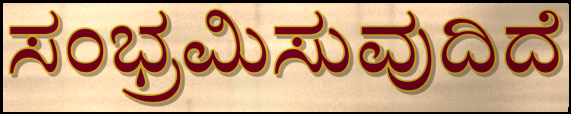
ಸಂಭ್ರಮಿಸುವುದಿದೆ